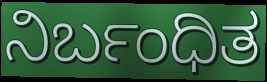
ನಿರ್ಬಂಧಿತ